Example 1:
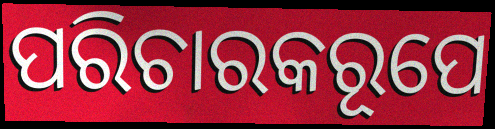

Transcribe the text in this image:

ପରିଚାରକରୂପେ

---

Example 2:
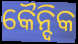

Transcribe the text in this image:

କୈନ୍ଦିକ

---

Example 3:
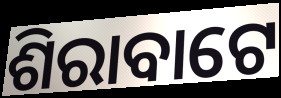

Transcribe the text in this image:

ଶିରାବାଟେ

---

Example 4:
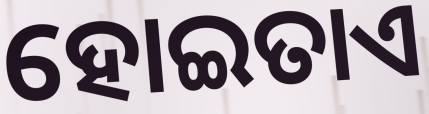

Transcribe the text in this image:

ହୋଇତାଏ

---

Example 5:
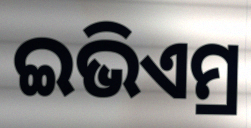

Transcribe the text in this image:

ଇଭିଏମ୍ର